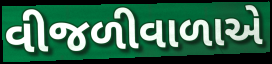
વીજળીવાળાએ